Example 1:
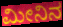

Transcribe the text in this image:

ಮೀನಿನ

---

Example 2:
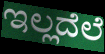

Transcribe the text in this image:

ಇಲ್ಲದೆಲೆ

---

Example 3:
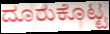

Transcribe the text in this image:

ದೂರುಕೊಟ್ಟ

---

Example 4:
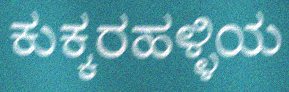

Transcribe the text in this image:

ಕುಕ್ಕರಹಳ್ಳಿಯ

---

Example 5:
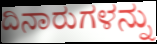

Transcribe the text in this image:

ದಿನಾರುಗಳನ್ನು